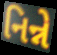
નિન્ને